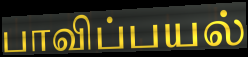
பாவிப்பயல்